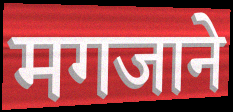
मगजाने